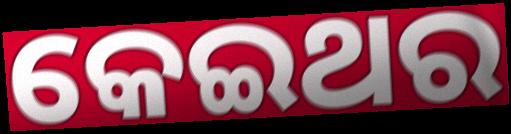
କେଇଥର